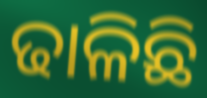
ଢାଳିଛି